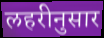
लहरीनुसार